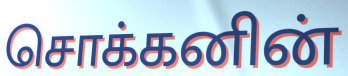
சொக்கனின்